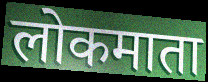
लोकमाता